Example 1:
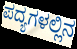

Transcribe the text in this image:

ಪದ್ಯಗಳಲ್ಲಿನ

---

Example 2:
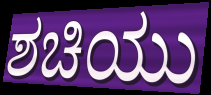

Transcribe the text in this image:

ಶಚಿಯು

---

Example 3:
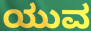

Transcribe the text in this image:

ಯುವ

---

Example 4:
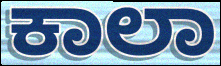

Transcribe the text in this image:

ಕಾಲಾ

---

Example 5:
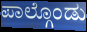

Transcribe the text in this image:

ಪಾಲ್ಗೊಂಡು